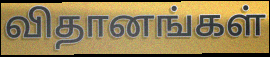
விதானங்கள்